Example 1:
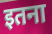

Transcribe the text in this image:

इतना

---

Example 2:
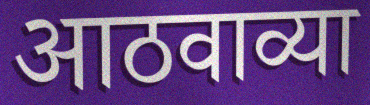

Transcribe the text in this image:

आठवाव्या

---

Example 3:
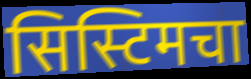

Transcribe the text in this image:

सिस्टिमचा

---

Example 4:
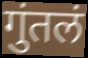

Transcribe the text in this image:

गुंतलं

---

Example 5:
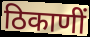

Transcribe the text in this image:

ठिकाणीं